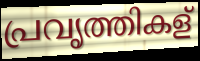
പ്രവൃത്തികള്